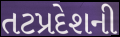
તટપ્રદેશની